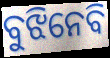
ବୁଝିନେବି